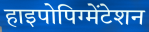
हाइपोपिग्मेंटेशन